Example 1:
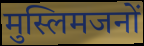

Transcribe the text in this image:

मुस्लिमजनों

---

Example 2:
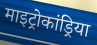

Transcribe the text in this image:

माइट्रोकांड्रिया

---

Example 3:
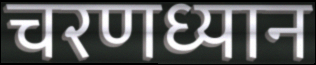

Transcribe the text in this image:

चरणध्यान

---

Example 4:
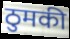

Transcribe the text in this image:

ठुमकी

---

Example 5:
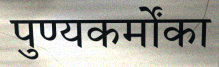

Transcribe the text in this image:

पुण्यकर्मोंका